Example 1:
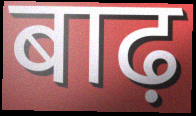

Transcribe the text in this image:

बाढ़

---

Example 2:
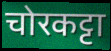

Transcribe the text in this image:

चोरकट्टा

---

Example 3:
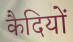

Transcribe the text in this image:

कैदियों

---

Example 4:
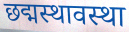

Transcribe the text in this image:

छद्मस्थावस्था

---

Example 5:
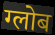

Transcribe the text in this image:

ग्लोब